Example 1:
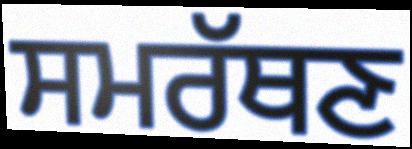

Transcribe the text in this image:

ਸਮਰੱਥਣ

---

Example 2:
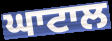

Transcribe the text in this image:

ਘਾਟਾਲ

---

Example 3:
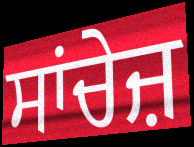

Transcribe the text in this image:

ਸਾਂਚੇਜ਼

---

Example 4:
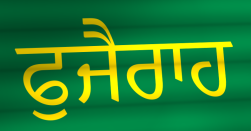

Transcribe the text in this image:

ਫੁਜੈਰਾਹ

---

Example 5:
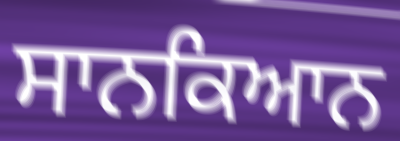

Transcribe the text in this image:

ਸਾਨਕਿਆਨ